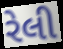
રેલી